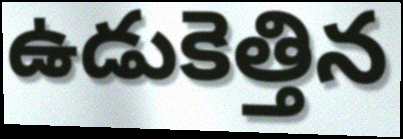
ఉడుకెత్తిన